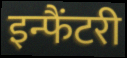
इन्फैंटरी